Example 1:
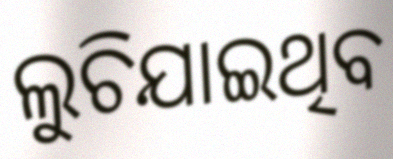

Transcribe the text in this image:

ଲୁଚିଯାଇଥିବ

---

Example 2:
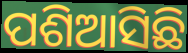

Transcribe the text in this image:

ପଶିଆସିଛି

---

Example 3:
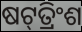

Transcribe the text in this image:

ଷଟ୍‌ତ୍ରିଂଶ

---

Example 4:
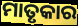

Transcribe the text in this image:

ମାତୃକାର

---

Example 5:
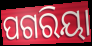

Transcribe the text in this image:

ପଗରିୟା